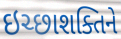
ઇચ્છાશક્તિને